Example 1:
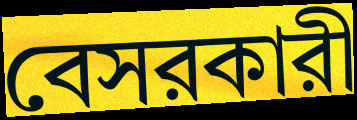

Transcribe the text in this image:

বেসরকারী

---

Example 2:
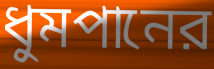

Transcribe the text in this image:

ধুমপানের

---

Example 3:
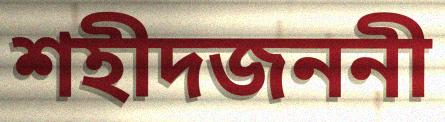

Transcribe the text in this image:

শহীদজননী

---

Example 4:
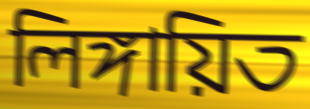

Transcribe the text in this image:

লিঙ্গায়িত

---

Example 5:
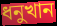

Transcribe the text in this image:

ধনুখান